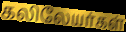
கலிலேயர்கள்